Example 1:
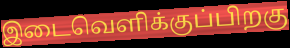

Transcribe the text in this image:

இடைவெளிக்குப்பிறகு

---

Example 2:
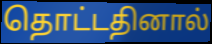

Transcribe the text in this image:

தொட்டதினால்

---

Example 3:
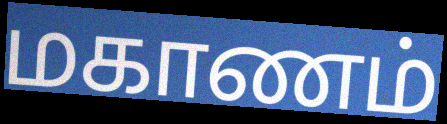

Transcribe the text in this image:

மகாணம்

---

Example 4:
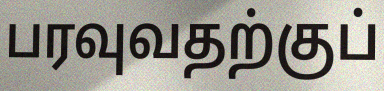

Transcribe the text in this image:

பரவுவதற்குப்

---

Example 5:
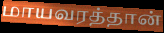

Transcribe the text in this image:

மாயவரத்தான்